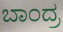
ಬಾಂದ್ರ